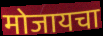
मोजायचा